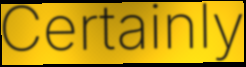
Certainly